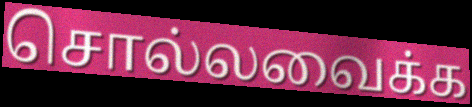
சொல்லவைக்க